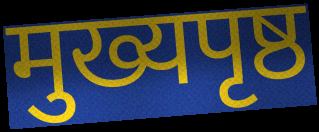
मुख्यपृष्ठ